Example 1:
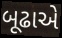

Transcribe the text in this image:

બૂઢાએ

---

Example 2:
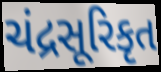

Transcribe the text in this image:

ચંદ્રસૂરિકૃત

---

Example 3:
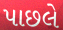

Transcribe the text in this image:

પાછલે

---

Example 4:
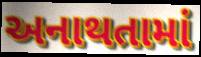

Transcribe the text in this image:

અનાથતામાં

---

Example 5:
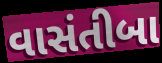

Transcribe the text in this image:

વાસંતીબા